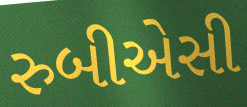
રુબીએસી